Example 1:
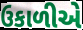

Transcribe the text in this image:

ઉકાળીએ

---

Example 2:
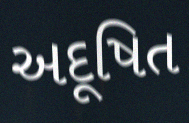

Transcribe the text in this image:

અદૂષિત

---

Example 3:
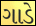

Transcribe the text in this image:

ગાડે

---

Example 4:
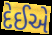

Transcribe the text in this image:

દેઈએ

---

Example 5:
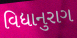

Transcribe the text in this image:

વિદ્યાનુરાગ